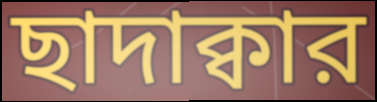
ছাদাক্বার